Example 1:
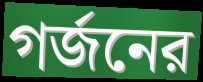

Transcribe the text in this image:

গর্জনের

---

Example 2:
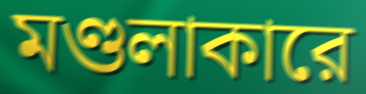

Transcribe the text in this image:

মণ্ডলাকারে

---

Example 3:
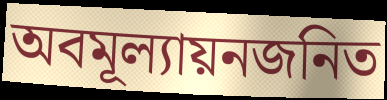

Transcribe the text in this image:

অবমূল্যায়নজনিত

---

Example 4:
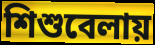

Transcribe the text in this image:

শিশুবেলায়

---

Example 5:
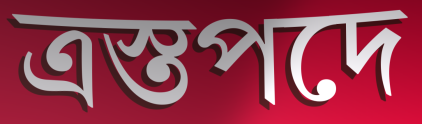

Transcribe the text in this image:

ত্রস্তপদে